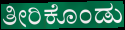
ತೀರಿಕೊಂಡು